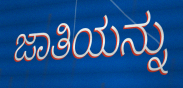
ಜಾತಿಯನ್ನು